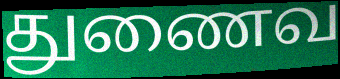
துணைவ